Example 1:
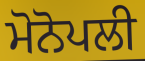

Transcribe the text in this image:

ਮੋਨੋਪਲੀ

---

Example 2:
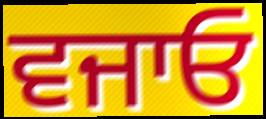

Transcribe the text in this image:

ਵਜਾਓ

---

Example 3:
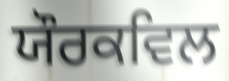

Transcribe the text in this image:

ਯੌਰਕਵਿਲ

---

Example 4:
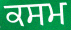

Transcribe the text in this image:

ਕਸਮ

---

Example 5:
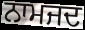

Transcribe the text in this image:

ਨਾਮਜਦ